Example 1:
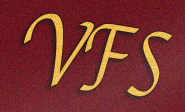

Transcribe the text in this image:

VFS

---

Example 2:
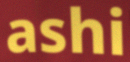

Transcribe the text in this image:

ashi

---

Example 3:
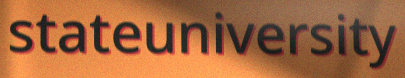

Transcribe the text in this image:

stateuniversity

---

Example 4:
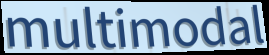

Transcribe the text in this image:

multimodal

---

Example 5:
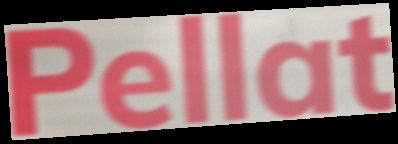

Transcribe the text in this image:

Pellat